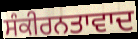
ਸੰਕੀਰਨਤਾਵਾਦ